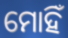
ମୋହିଁ